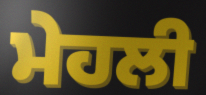
ਮੇਹਲੀ